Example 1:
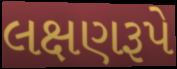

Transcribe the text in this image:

લક્ષણરૂપે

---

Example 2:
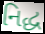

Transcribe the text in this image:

નિદ્ધ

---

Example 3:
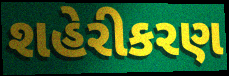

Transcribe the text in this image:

શહેરીકરણ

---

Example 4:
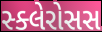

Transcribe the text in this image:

સ્ક્લેરોસસ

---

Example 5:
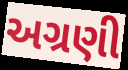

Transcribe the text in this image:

અગ્રણી